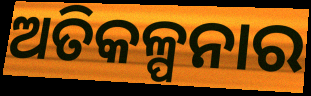
ଅତିକଳ୍ପନାର